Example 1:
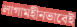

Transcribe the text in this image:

লাগামহীনভাবেই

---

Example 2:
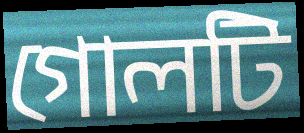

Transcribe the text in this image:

গোলটি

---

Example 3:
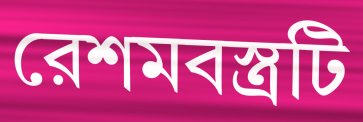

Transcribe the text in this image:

রেশমবস্ত্রটি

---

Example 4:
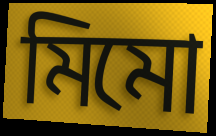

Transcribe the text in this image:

মিমো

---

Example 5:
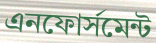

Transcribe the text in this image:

এনফোর্সমেন্ট